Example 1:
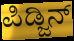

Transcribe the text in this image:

ಪಿಡ್ಜಿನ್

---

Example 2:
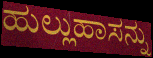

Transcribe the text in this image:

ಹುಲ್ಲುಹಾಸನ್ನು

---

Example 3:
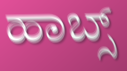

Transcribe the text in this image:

ಹಾಬ್ಸ್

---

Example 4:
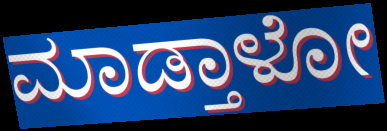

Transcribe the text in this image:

ಮಾಡ್ತಾಳೋ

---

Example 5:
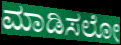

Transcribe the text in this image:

ಮಾಡಿಸಲೋ